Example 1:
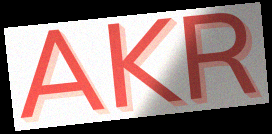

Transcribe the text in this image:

AKR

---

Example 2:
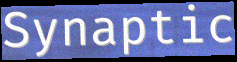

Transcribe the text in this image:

Synaptic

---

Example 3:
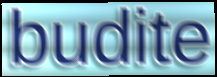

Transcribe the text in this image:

budite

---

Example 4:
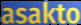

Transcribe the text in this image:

asakto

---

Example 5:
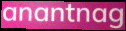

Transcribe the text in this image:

anantnag